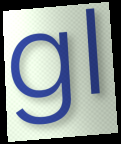
gl